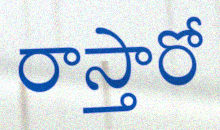
రాస్తారో